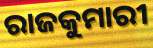
ରାଜକୁମାରୀ